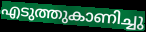
എടുത്തുകാണിച്ചു